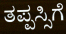
ತಪ್ಪಸ್ಸಿಗೆ